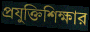
প্রযুক্তিশিক্ষার